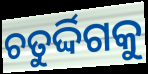
ଚତୁର୍ଦ୍ଦିଗକୁ